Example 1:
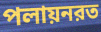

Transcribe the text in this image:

পলায়নরত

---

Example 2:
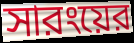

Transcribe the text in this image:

সারংয়ের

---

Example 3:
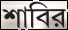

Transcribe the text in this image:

শাবির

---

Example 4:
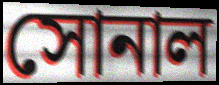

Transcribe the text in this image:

সোনাল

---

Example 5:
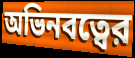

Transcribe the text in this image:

অভিনবত্বের